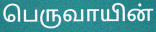
பெருவாயின்